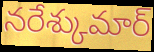
నరేశ్కుమార్